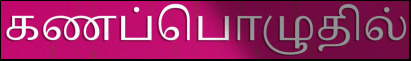
கணப்பொழுதில்